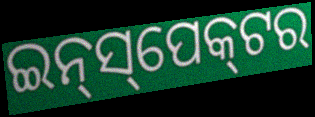
ଇନ୍‌ସ୍‌ପେକ୍‌ଟର